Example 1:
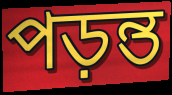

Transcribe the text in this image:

পড়ন্ত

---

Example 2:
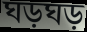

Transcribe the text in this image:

ঘড়ঘড়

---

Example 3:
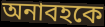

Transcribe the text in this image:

অনাবহকে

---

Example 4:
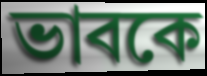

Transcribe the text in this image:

ভাবকে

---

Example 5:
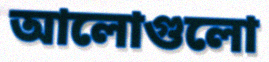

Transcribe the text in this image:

আলোগুলো